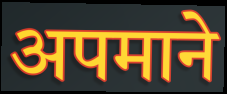
अपमाने